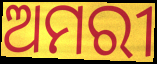
ଅମରୀ